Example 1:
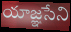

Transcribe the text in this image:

యాజ్ఞసేని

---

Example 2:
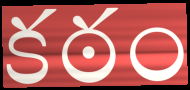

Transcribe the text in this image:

కఠం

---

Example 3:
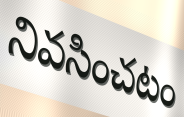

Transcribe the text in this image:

నివసించటం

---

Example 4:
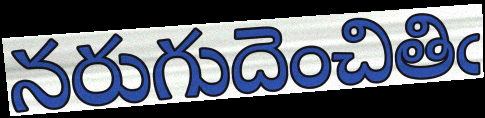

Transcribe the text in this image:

నరుగుదెంచితిఁ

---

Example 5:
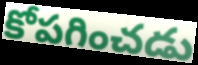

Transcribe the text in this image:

కోపగించడు